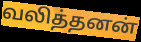
வலித்தனன்